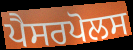
ਪੈਸਰਪੋਲਸ